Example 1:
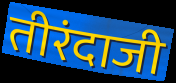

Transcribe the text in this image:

तीरंदाजी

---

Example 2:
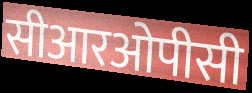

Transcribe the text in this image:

सीआरओपीसी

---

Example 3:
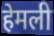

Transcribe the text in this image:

हेमली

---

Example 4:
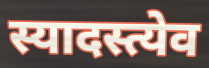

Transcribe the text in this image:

स्यादस्त्येव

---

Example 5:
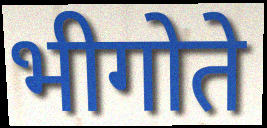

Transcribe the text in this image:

भीगोते